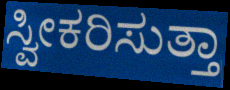
ಸ್ವೀಕರಿಸುತ್ತಾ